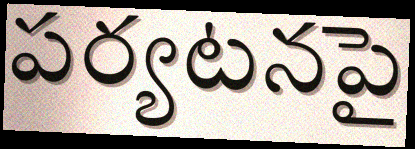
పర్యటనపై